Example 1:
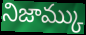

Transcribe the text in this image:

నిజామ్కు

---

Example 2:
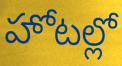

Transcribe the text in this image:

హోటల్లో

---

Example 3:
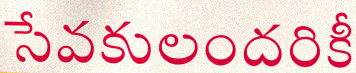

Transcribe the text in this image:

సేవకులందరికీ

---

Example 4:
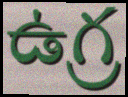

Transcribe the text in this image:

ఉగ్ర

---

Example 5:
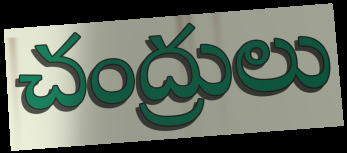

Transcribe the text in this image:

చంద్రులు